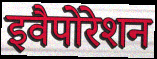
इवैपोरेशन